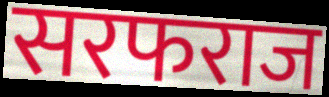
सरफराज